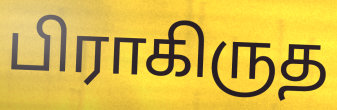
பிராகிருத